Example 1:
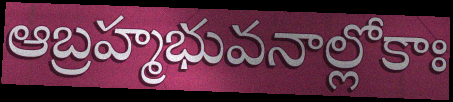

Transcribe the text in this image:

ఆబ్రహ్మభువనాల్లోకాః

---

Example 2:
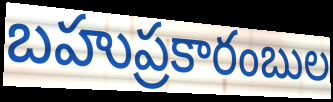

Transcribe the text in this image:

బహుప్రకారంబుల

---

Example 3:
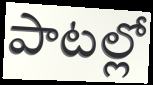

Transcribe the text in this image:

పాటల్లో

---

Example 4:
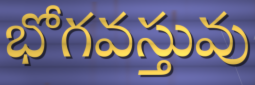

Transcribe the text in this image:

భోగవస్తువు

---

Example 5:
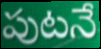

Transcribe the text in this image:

పుటనే